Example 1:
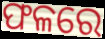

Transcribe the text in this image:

ଫଳରେ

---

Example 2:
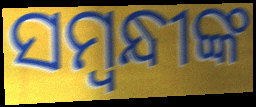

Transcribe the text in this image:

ସମ୍ବନ୍ଧୀଙ୍କ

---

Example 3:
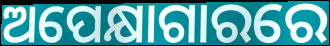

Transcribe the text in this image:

ଅପେକ୍ଷାଗାରରେ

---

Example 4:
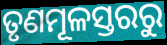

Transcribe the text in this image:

ତୃଣମୂଳସ୍ତରରୁ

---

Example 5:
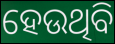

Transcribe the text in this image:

ହେଉଥିବି